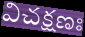
విచక్షణః